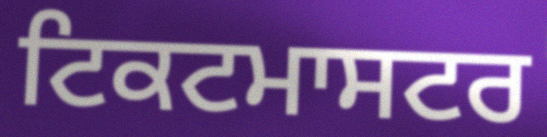
ਟਿਕਟਮਾਸਟਰ